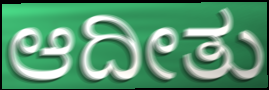
ಆದೀತು